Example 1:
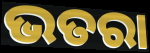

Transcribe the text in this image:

ଭତରା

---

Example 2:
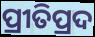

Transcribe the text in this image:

ପ୍ରୀତିପ୍ରଦ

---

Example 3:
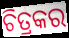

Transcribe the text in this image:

ଚିତ୍ରକର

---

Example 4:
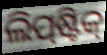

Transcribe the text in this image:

ଲିପ୍‌ଷ୍ଟିକ୍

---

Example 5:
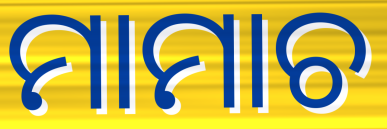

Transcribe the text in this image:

ମାମାଚ